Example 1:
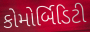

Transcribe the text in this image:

કોમોર્બિડિટી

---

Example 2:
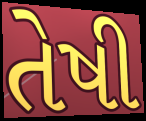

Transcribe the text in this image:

તેષી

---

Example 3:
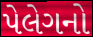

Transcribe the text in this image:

પેલેગનો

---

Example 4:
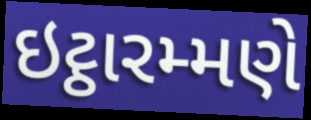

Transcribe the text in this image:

ઇટ્ઠારમ્મણે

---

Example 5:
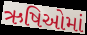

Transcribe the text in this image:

ઋષિઓમાં